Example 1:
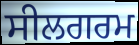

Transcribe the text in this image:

ਸੀਲਗਰਮ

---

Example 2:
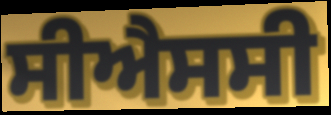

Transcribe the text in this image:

ਸੀਐਸਸੀ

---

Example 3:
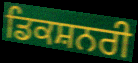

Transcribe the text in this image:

ਡਿਕਸ਼ਨਰੀ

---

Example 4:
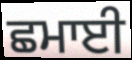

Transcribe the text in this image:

ਛਮਾਈ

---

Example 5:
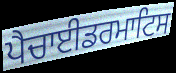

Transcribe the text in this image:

ਪੈਚਾਈਡਰਮਾਟਿਸ